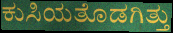
ಕುಸಿಯತೊಡಗಿತ್ತು